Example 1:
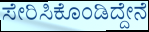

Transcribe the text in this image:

ಸೇರಿಸಿಕೊಂಡಿದ್ದೇನೆ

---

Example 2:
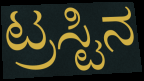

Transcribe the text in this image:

ಟ್ರಸ್ಟಿನ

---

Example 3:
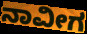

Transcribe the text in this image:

ನಾವೀಗ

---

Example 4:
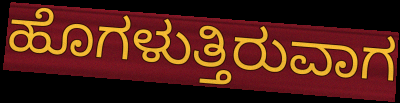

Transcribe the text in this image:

ಹೊಗಳುತ್ತಿರುವಾಗ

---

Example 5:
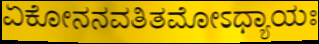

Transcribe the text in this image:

ಏಕೋನನವತಿತಮೋಽಧ್ಯಾಯಃ